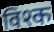
विश्क